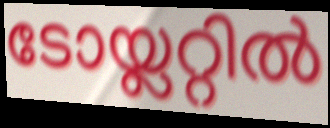
ടോയ്ലറ്റിൽ